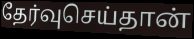
தேர்வுசெய்தான்